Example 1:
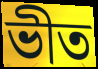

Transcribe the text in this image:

ভীত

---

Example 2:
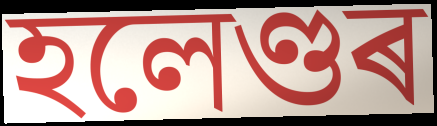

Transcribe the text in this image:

হলেণ্ডৰ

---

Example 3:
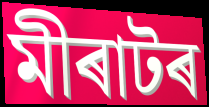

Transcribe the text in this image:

মীৰাটৰ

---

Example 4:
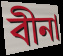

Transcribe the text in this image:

বীনা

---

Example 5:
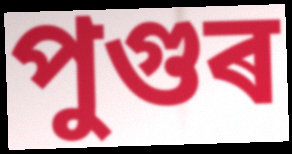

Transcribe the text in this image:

পুগুৰ